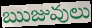
ఋజువులు